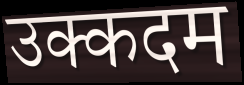
उक्कदम